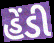
હેંડી